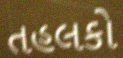
તહલકો